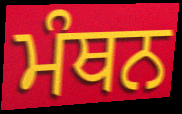
ਮੰਥਨ